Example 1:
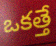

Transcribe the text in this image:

ఒకత్తే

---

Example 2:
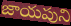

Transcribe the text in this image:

జాయపుని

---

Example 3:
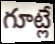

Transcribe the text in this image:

గూట్లే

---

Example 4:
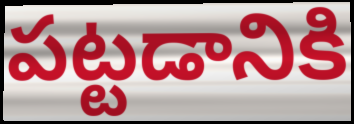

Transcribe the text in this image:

పట్టడానికి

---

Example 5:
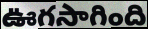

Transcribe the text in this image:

ఊగసాగింది